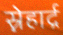
स्नेहार्द्र